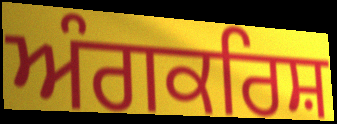
ਅੰਗਕਰਿਸ਼